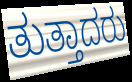
ತುತ್ತಾದರು